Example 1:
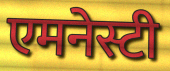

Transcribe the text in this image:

एमनेस्टी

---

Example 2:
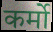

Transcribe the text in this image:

कर्मो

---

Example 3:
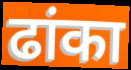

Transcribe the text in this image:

ढांका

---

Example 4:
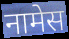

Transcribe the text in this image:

नामेस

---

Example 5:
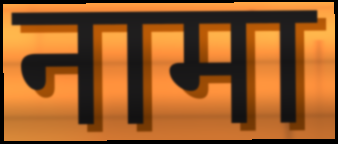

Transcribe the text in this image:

नामा